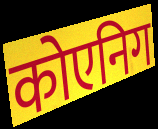
कोएनिग